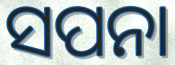
ସପନା